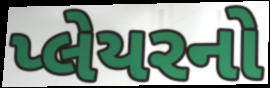
પ્લેયરનો